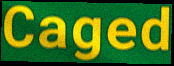
Caged